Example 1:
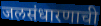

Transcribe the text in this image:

जलसंधारणाची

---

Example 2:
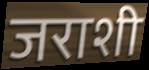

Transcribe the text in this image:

जराशी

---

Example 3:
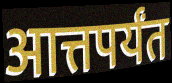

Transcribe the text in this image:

आत्तपर्यंत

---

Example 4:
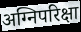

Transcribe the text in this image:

अग्निपरिक्षा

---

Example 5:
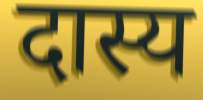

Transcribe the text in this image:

दास्य